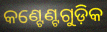
କଣ୍ଟେଣ୍ଟଗୁଡ଼ିକ